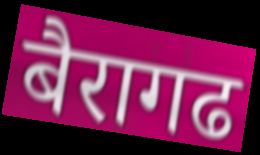
बैरागढ